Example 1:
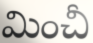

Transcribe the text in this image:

మించీ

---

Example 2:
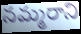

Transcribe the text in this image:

నమ్మరాని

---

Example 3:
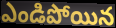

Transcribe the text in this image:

ఎండిపోయిన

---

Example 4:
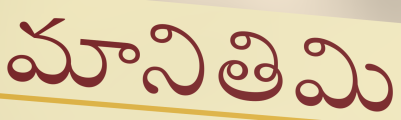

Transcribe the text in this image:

మానితిమి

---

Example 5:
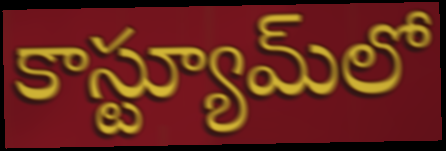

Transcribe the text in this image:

కాస్ట్యూమ్‌లో